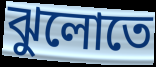
ঝুলোতে